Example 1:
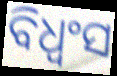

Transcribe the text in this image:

ବିଧ୍ଵଂସ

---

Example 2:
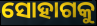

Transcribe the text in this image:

ସୋହାଗକୁ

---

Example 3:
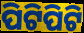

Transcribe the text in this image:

ପିଟିପିଟି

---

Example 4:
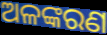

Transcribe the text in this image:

ଅଳଙ୍କରଣ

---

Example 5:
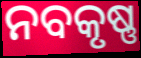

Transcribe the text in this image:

ନବକୃଷ୍ଣ